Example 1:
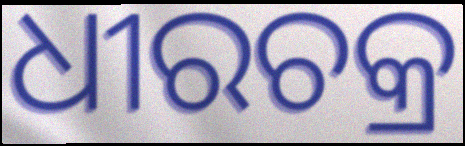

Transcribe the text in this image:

ଧୀରଚକ୍ର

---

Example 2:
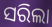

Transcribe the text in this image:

ସରିଲା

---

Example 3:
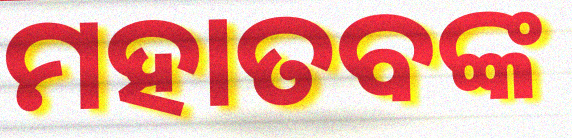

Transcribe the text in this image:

ମହାତବଙ୍କ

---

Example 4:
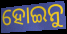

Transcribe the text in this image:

ହୋଇନୁ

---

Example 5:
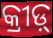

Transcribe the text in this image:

କ୍ରୀଡ଼୍